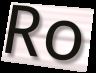
Ro